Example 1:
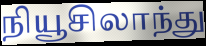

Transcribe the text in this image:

நியூசிலாந்து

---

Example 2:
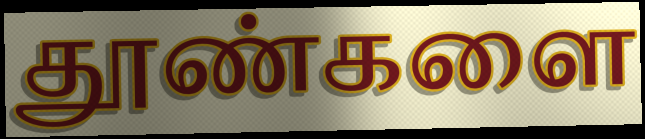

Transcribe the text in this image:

தூண்களை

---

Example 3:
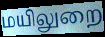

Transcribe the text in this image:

மயிலுறை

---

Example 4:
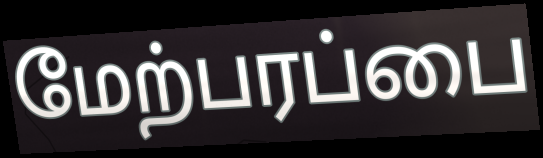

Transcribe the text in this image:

மேற்பரப்பை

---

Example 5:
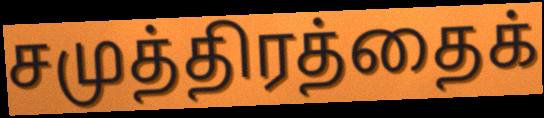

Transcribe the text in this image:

சமுத்திரத்தைக்